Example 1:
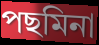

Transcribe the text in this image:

পছমিনা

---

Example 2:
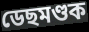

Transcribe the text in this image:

ডেছমণ্ডক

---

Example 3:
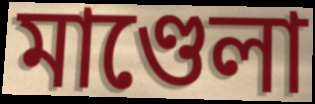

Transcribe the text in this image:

মাণ্ডেলা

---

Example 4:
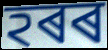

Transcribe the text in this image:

হৰৰ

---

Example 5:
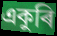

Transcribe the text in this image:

একুৰি